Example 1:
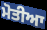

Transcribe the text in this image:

ਮੋਤੀਆ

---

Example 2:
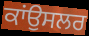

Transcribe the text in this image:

ਕਾਂਉਸਲਰ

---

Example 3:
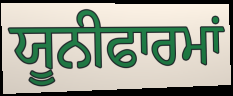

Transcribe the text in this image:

ਯੂਨੀਫਾਰਮਾਂ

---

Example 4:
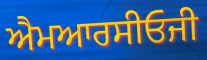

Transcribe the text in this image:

ਐਮਆਰਸੀਓਜੀ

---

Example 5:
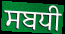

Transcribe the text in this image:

ਸਬਧੀ